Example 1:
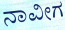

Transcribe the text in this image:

ನಾವೀಗ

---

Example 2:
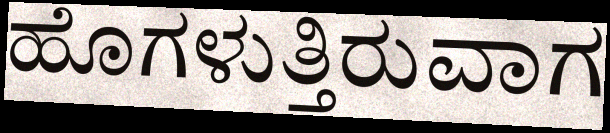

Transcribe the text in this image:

ಹೊಗಳುತ್ತಿರುವಾಗ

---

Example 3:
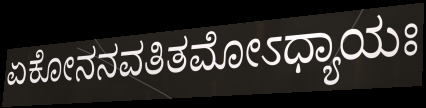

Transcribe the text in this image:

ಏಕೋನನವತಿತಮೋಽಧ್ಯಾಯಃ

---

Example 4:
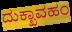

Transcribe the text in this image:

ದುಕ್ಖಾವಹಂ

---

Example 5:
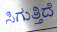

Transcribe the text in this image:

ಸಿಗುತ್ತಿದೆ